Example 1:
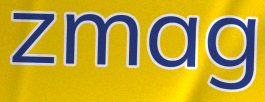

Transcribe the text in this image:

zmag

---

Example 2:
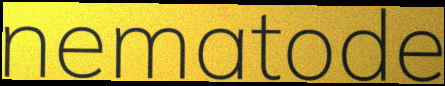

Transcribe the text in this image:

nematode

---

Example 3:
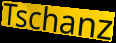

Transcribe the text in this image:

Tschanz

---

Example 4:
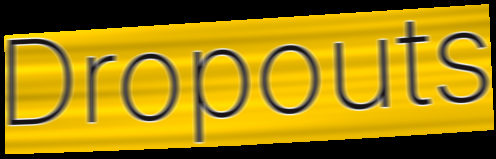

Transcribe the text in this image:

Dropouts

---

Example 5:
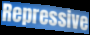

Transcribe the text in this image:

Repressive